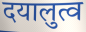
दयालुत्व